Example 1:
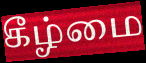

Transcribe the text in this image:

கீழ்மை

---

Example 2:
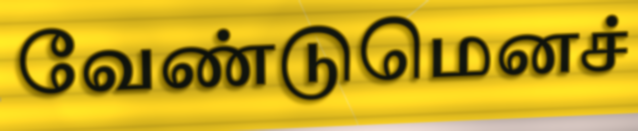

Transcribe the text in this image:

வேண்டுமெனச்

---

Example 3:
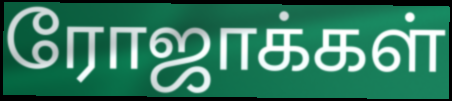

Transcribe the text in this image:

ரோஜாக்கள்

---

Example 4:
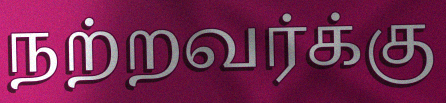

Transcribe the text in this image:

நற்றவர்க்கு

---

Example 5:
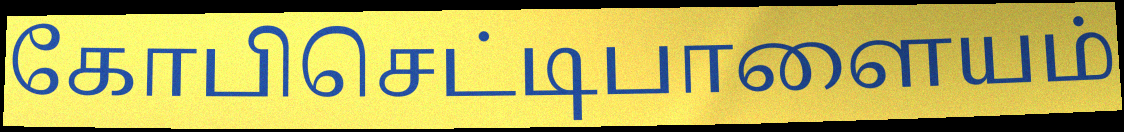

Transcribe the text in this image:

கோபிசெட்டிபாளையம்